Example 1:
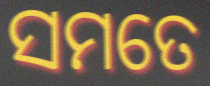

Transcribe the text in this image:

ସମତେ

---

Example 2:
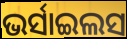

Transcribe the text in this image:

ଭର୍ସାଇଲସ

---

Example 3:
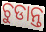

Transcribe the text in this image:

ଚୁଡାନ୍ତ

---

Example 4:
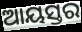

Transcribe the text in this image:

ଆୟସ୍ତର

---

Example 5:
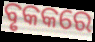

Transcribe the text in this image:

ବୃକକରେ